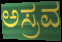
ಅಸ್ರವ